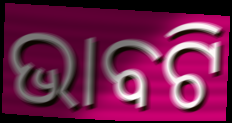
ଭାବଟି